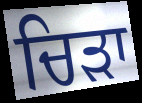
ਚਿੜਾ